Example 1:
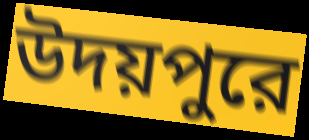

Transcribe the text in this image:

উদয়পুরে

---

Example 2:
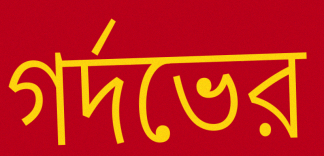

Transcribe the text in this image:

গর্দভের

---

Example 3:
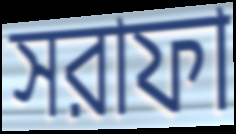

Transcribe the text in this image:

সরাফা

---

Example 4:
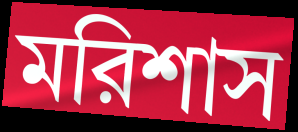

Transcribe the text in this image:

মরিশাস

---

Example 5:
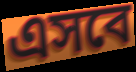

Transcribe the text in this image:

এসবে